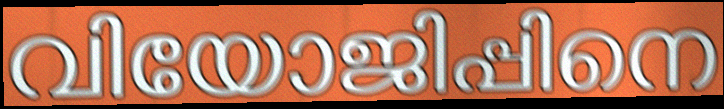
വിയോജിപ്പിനെ